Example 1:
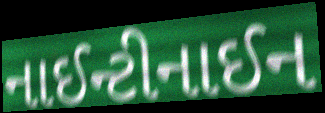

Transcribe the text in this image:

નાઈન્ટીનાઈન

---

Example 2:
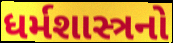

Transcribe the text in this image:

ધર્મશાસ્ત્રનો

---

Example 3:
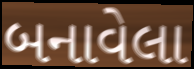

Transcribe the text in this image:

બનાવેલા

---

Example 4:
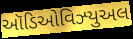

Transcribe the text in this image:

ઑડિઓવિઝ્યુઅલ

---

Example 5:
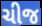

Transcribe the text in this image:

ચીજ